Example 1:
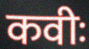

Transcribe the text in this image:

कवीः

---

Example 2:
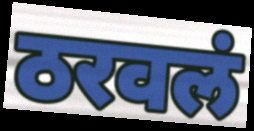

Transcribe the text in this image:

ठरवलं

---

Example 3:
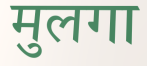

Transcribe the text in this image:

मुलगा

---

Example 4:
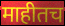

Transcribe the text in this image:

माहीतच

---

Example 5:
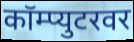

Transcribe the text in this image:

कॉम्प्युटरवर